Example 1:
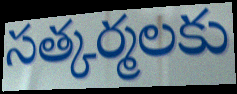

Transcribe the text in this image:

సత్కర్మలకు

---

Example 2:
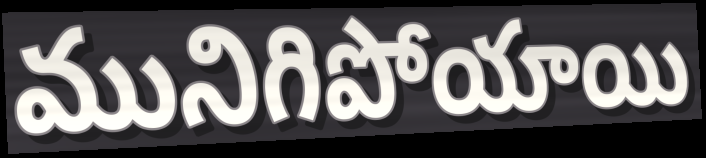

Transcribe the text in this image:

మునిగిపోయాయి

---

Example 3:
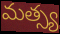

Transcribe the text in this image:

మత్స్య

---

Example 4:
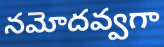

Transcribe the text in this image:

నమోదవ్వగా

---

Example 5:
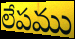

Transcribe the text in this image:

లేపము